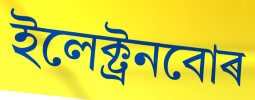
ইলেক্ট্ৰনবোৰ